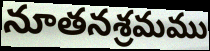
నూతనశ్రమము